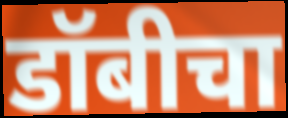
डॉबीचा